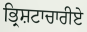
ਭ੍ਰਿਸ਼ਟਾਚਾਰੀਏ